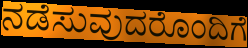
ನಡೆಸುವುದರೊಂದಿಗೆ